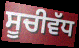
ਸੂਚੀਵੱਧ